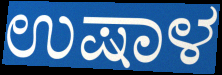
ಉಷಾಳ